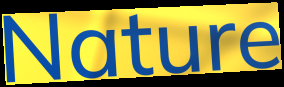
Nature